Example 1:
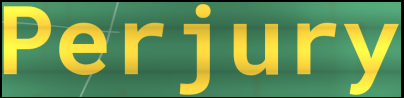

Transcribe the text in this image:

Perjury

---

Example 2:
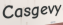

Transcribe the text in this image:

Casgevy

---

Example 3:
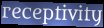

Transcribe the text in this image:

receptivity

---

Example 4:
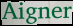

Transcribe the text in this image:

Aigner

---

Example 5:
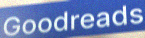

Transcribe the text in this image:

Goodreads